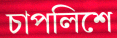
চাপলিশে